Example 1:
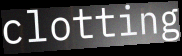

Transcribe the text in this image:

clotting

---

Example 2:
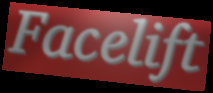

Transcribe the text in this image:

Facelift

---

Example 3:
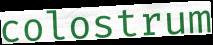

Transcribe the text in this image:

colostrum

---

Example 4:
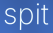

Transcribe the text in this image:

spit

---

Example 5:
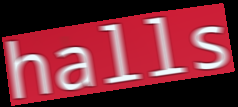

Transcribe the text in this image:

halls